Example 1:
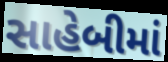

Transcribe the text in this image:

સાહેબીમાં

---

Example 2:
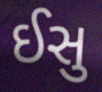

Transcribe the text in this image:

ઈસુ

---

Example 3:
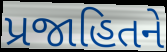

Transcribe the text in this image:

પ્રજાહિતને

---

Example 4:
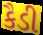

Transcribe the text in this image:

કૈડી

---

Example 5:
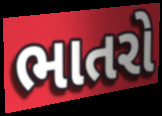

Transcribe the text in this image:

ભાતરો